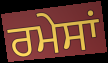
ਰਮੇਸਾਂ